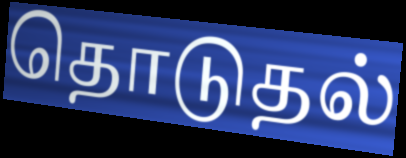
தொடுதல்